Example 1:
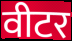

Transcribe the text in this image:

वीटर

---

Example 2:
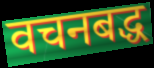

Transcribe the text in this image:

वचनबद्ध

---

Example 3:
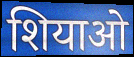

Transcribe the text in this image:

शियाओ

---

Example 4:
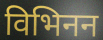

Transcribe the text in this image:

विभिनन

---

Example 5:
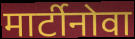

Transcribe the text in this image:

मार्टीनोवा